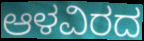
ಆಳವಿರದ